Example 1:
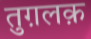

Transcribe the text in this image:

तुग़लक़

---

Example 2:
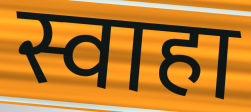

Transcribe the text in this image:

स्‍वाहा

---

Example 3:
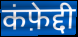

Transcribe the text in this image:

कंफ़ेद्दी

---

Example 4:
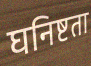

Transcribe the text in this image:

घनिष्टता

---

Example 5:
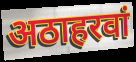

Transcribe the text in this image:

अठाहरवां